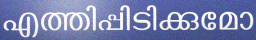
എത്തിപ്പിടിക്കുമോ